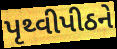
પૃથ્વીપીઠને